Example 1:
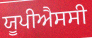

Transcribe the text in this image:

ਯੂਪੀਐਸਸੀ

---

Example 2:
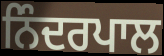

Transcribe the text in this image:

ਨਿੰਦਰਪਾਲ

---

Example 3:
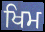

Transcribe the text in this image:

ਖਿਮ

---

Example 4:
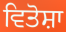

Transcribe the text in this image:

ਵਿਤੋਸ਼ਾ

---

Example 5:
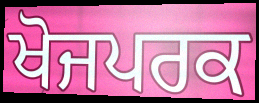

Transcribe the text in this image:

ਖੋਜਪਰਕ